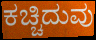
ಕಚ್ಚಿದುವು